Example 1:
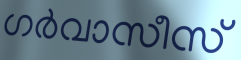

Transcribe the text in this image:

ഗർവാസീസ്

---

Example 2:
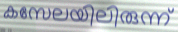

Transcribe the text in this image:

കസേലയിലിരുന്ന്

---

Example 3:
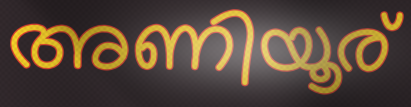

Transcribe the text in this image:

അണിയൂര്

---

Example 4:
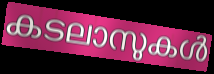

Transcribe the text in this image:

കടലാസുകൾ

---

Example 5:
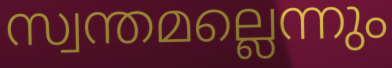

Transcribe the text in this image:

സ്വന്തമല്ലെന്നും